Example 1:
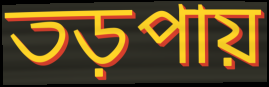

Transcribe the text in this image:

তড়পায়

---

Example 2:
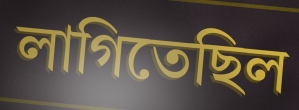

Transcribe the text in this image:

লাগিতেছিল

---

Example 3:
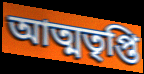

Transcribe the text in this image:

আত্মতৃপ্তি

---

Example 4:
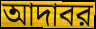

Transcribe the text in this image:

আদাবর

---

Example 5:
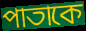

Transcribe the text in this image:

পাতাকে